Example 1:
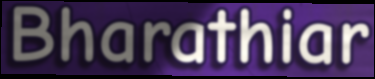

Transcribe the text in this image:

Bharathiar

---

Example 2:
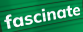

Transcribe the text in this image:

fascinate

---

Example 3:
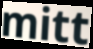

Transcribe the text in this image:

mitt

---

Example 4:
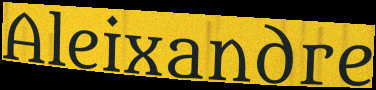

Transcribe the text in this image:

Aleixandre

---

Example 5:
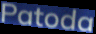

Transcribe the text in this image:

Patoda